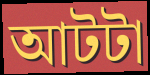
আটটা